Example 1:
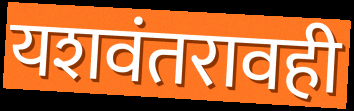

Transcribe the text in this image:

यशवंतरावही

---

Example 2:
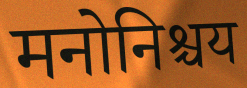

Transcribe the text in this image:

मनोनिश्चय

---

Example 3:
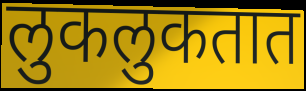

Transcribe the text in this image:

लुकलुकतात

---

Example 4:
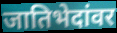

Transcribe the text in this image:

जातिभेदांवर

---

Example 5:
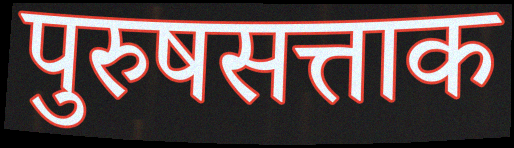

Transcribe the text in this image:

पुरुषसत्ताक